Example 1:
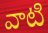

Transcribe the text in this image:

వాటి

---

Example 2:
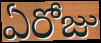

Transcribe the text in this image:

ఏరోజు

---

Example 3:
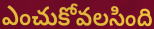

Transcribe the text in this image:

ఎంచుకోవలసింది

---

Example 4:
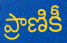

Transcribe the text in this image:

ప్రాణికీ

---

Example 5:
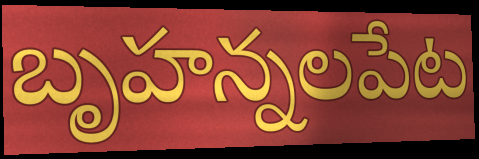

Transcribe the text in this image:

బృహన్నలపేట